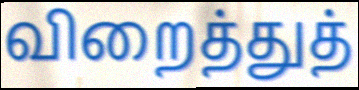
விறைத்துத்